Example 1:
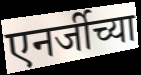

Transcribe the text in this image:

एनर्जीच्या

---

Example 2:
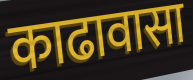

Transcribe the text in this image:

काढावासा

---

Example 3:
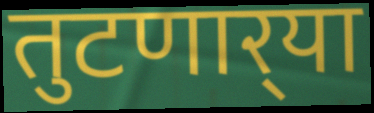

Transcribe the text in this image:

तुटणार्‍या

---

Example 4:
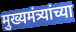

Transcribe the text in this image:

मुख्यमंत्र्यांच्या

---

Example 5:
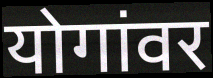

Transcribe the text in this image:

योगांवर